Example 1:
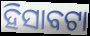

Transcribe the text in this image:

ହିସାବଟା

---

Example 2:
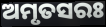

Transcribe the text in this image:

ଅମୃତସରଃ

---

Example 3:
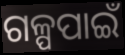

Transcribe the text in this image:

ଗଳ୍ପପାଇଁ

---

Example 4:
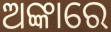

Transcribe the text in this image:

ଅଙ୍କାରେ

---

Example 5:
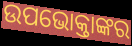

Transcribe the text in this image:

ଉପଭୋକ୍ତାଙ୍କର